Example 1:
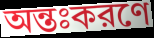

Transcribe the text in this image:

অন্তঃকরণে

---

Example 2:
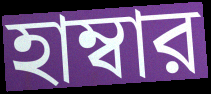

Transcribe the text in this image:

হাম্বার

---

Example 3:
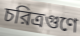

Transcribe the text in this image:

চরিত্রগুণে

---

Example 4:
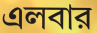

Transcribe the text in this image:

এলবার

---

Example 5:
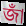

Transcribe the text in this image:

জাঁ